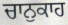
ਚਾਨੁਕਾਹ